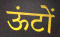
ऊंटों